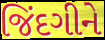
જિંદગીને